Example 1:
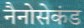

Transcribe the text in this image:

नैनोसेकंड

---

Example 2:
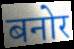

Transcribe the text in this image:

बनोर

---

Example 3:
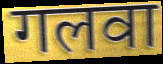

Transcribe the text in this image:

गलवा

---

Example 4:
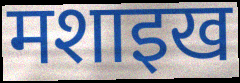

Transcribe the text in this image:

मशाइख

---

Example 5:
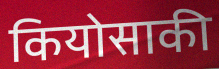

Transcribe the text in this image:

कियोसाकी